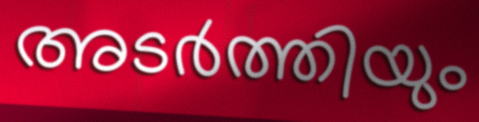
അടർത്തിയും